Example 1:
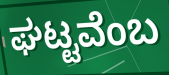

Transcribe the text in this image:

ಘಟ್ಟವೆಂಬ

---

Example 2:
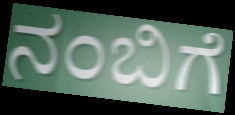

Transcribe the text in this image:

ನಂಬಿಗೆ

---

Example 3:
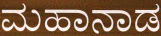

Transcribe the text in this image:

ಮಹಾನಾಡ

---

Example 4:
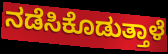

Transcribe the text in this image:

ನಡೆಸಿಕೊಡುತ್ತಾಳೆ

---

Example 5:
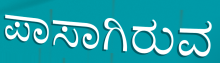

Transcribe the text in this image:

ಪಾಸಾಗಿರುವ